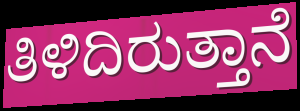
ತಿಳಿದಿರುತ್ತಾನೆ